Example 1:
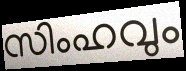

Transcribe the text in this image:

സിംഹവും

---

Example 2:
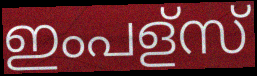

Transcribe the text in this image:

ഇംപള്സ്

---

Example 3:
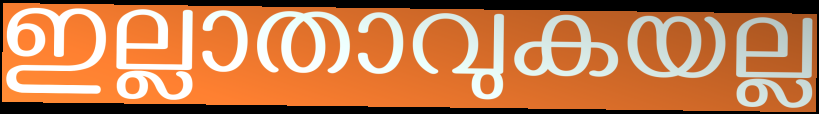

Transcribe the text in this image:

ഇല്ലാതാവുകയല്ല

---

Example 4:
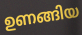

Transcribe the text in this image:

ഉണങ്ങിയ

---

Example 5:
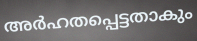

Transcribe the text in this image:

അർഹതപ്പെട്ടതാകും